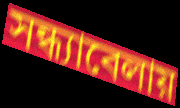
সন্ধ্যাবেলায়